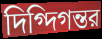
দিগ্দিগন্তর